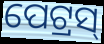
ପେଟ୍ରସ୍